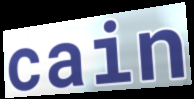
cain